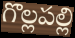
గొల్లపల్లి